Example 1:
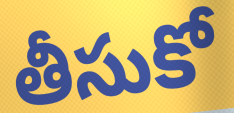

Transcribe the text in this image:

తీసుకో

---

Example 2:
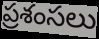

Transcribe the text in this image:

ప్రశంసలు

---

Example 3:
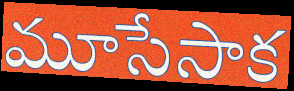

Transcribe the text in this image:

మూసేసాక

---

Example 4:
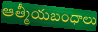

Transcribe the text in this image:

ఆత్మీయబంధాలు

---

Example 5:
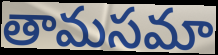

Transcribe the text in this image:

తామసమా